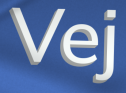
Vej